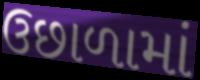
ઉછાળામાં